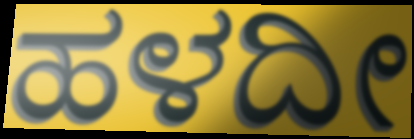
ಹಳದೀ